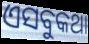
ଏସବୁକଥା